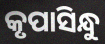
କୃପାସିନ୍ଧୁ